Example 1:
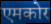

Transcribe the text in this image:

एमकोर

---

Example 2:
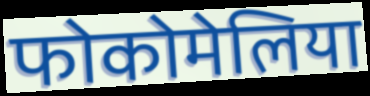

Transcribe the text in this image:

फोकोमेलिया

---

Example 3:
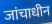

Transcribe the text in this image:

जांचाधीन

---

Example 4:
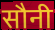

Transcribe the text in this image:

सौनी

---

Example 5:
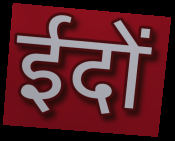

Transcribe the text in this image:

ईदों